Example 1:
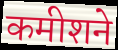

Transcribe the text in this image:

कमीशने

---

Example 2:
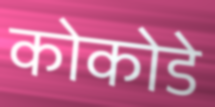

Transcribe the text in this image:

कोकोडे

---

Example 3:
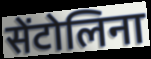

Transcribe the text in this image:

सेंटोलिना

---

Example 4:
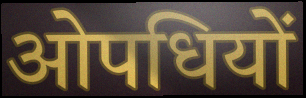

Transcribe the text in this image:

ओपधियों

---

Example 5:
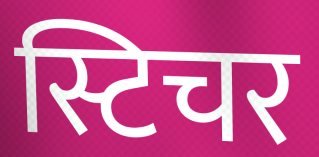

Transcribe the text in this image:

स्टिचर